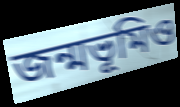
জন্মভূমিও